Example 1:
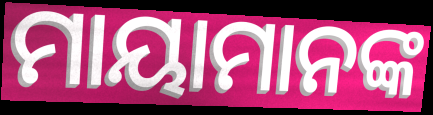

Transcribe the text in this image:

ମାୟାମାନଙ୍କ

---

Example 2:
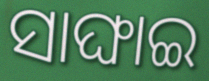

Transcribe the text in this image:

ସାଙ୍ଘାଇ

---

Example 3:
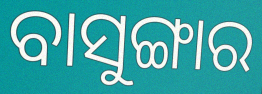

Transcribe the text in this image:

ବାସୁଙ୍ଗାର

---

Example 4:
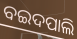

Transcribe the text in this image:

ବଇଦପାଲି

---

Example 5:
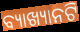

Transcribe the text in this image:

ବ୍ୟାଖ୍ୟାନଟି